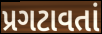
પ્રગટાવતાં